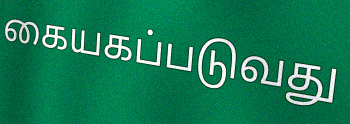
கையகப்படுவது